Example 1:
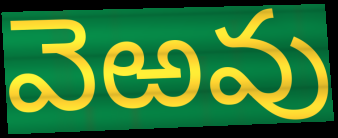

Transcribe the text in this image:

వెఱవు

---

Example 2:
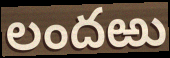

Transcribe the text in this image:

లందఱు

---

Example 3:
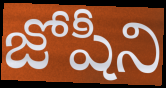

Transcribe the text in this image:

జోషీని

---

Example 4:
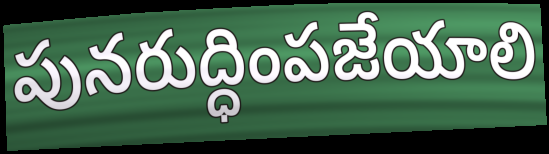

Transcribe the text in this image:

పునరుద్ధింపజేయాలి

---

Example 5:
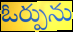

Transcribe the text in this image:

ఓర్పును